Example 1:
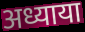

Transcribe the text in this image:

अध्याया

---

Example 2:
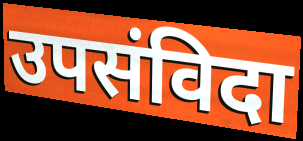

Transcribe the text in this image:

उपसंविदा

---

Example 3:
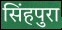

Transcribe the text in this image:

सिंहपुरा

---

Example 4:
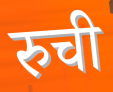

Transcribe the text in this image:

रुची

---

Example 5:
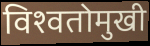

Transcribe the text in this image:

विश्वतोमुखी